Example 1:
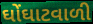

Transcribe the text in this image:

ઘોંઘાટવાળી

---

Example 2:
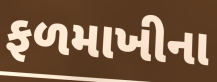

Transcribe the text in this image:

ફળમાખીના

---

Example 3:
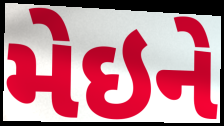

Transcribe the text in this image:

મેઇને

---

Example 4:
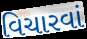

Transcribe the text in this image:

વિચારવાં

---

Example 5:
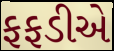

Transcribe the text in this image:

ફફડીએ